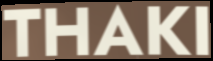
THAKI